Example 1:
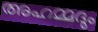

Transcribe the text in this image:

അഹമ്മദും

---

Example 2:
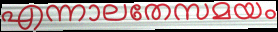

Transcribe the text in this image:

എന്നാലതേസമയം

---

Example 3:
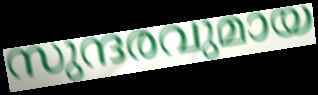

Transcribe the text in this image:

സുന്ദരവുമായ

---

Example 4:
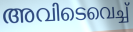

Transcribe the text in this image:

അവിടെവെച്ച്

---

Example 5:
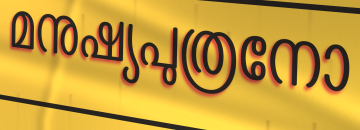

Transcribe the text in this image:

മനുഷ്യപുത്രനോ